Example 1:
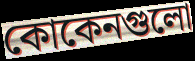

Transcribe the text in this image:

কোকেনগুলো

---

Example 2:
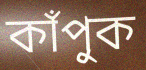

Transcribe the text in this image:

কাঁপুক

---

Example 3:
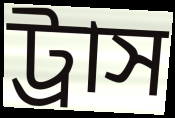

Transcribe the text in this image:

ট্রাস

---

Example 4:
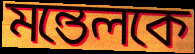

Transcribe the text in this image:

মন্তেলকে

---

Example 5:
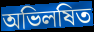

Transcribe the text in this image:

অভিলষিত